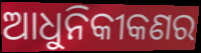
ଆଧୁନିକୀକଣର